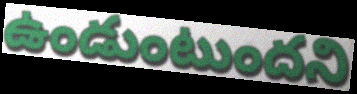
ఉండుంటుందని